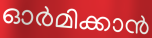
ഓർമിക്കാൻ